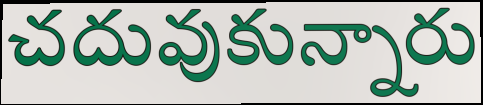
చదువుకున్నారు